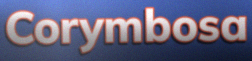
Corymbosa